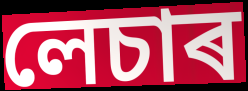
লেচাৰ